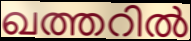
ഖത്തറിൽ